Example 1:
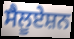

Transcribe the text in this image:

ਸੈਲੂਏਸ਼ਨ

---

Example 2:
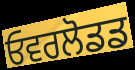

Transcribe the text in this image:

ਓਵਰਲੋਡਡ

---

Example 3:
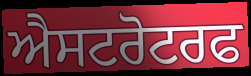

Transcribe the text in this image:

ਐਸਟਰੋਟਰਫ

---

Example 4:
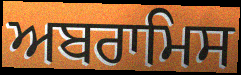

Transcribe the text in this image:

ਅਬਰਾਮਿਸ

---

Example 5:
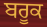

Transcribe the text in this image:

ਬਰੂਕ